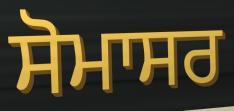
ਸੋਮਾਸਰ